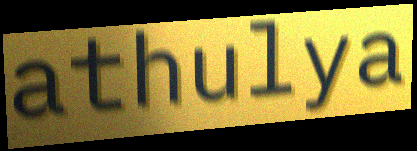
athulya